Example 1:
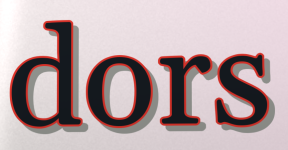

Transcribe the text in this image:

dors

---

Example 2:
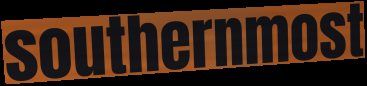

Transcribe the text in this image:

southernmost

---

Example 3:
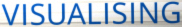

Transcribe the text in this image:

VISUALISING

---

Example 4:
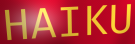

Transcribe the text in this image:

HAIKU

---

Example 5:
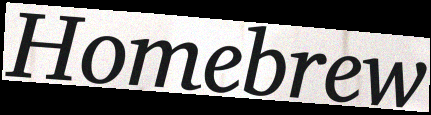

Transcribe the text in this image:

Homebrew